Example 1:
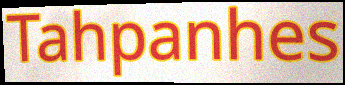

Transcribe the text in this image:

Tahpanhes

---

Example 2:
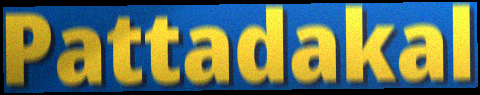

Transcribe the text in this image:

Pattadakal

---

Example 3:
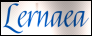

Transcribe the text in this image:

Lernaea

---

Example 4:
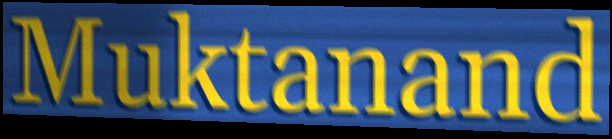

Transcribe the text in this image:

Muktanand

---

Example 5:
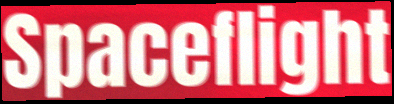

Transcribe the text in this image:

Spaceflight